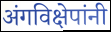
अंगविक्षेपांनी